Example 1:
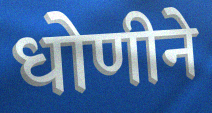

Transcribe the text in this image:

धोणीने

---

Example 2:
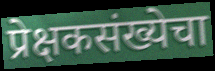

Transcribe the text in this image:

प्रेक्षकसंख्येचा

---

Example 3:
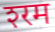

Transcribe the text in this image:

श्रम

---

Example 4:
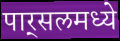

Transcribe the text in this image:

पार्सलमध्ये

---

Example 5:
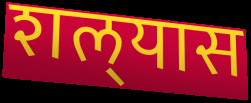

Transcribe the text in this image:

शल्यास